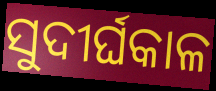
ସୁଦୀର୍ଘକାଳ